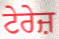
ਟੇਰੇਜ਼